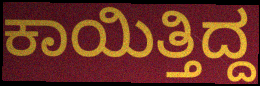
ಕಾಯಿತ್ತಿದ್ದ